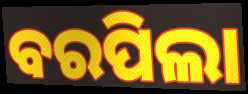
ବରପିଲା